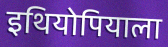
इथियोपियाला